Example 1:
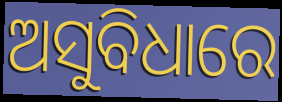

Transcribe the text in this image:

ଅସୁବିଧାରେ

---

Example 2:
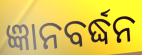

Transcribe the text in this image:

ଜ୍ଞାନବର୍ଦ୍ଧନ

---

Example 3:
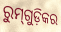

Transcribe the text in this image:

ରୁମ୍‌ଗୁଡ଼ିକର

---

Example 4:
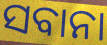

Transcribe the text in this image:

ସବାନା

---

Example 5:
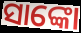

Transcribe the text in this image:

ସାଙ୍କୋ